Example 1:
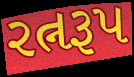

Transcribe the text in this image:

રત્નરૂપ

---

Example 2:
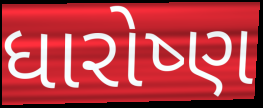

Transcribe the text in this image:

ધારોષ્ણ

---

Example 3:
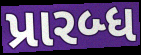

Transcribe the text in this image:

પ્રારબ્ધ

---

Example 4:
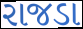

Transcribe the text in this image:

રાજડા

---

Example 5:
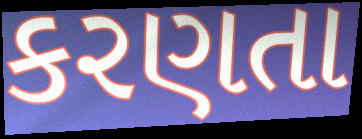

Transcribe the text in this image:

કરણતા